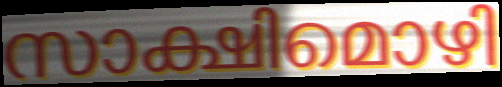
സാക്ഷിമൊഴി